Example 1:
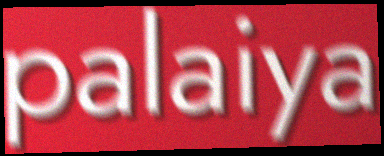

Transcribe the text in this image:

palaiya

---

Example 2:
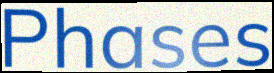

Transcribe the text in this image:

Phases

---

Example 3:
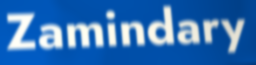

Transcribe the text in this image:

Zamindary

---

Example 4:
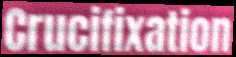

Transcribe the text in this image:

Crucifixation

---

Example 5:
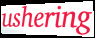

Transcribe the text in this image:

ushering